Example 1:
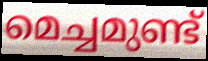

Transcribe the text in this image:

മെച്ചമുണ്ട്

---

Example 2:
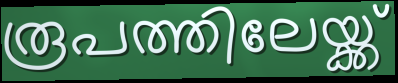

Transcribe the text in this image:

രൂപത്തിലേയ്ക്ക്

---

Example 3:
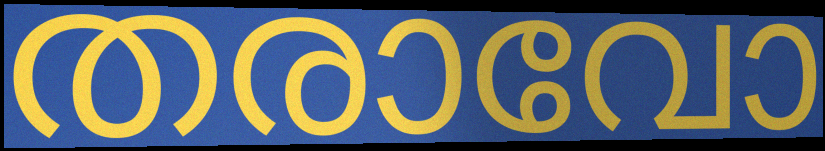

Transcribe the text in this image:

തരാവോ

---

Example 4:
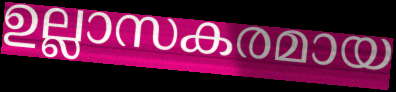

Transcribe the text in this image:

ഉല്ലാസകരമായ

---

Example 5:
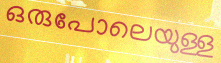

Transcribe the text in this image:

ഒരുപോലെയുള്ള